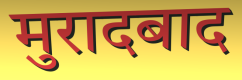
मुरादबाद